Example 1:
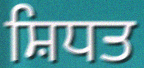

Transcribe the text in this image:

ਸ਼ਿਧਤ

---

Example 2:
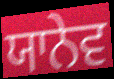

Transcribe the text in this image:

ਯਾਨੇਵ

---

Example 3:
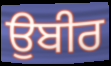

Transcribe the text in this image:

ਉਬੀਰ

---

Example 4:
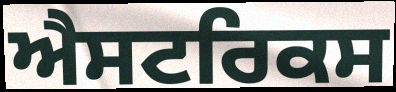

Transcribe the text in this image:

ਐਸਟਰਿਕਸ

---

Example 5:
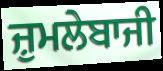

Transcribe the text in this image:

ਜ਼ੁਮਲੇਬਾਜੀ